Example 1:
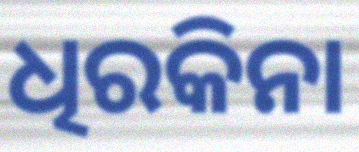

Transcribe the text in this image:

ଧିରକିନା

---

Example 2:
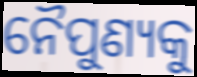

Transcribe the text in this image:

ନୈପୁଣ୍ୟକୁ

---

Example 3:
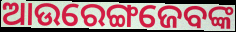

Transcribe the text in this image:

ଆଉରେଙ୍ଗଜେବଙ୍କ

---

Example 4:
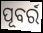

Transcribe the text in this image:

ପୂବର୍ର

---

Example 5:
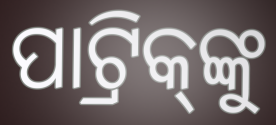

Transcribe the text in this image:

ପାଟ୍ରିକ୍‌ଙ୍କୁ